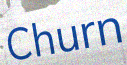
Churn